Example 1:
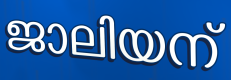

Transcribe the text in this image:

ജാലിയന്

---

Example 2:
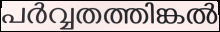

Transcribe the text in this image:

പർവ്വതത്തിങ്കൽ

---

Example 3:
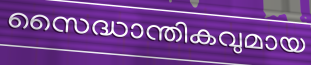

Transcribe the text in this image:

സൈദ്ധാന്തികവുമായ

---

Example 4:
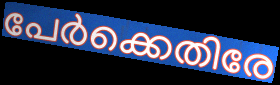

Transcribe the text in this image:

പേർക്കെതിരേ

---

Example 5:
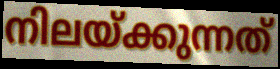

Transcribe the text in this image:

നിലയ്ക്കുന്നത്